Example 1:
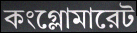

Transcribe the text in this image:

কংগ্লোমারেট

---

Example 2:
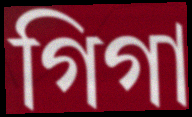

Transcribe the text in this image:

গিগা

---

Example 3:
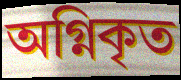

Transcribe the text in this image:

অগ্নিকৃত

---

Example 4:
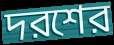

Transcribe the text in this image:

দরশের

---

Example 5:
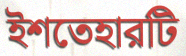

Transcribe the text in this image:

ইশতেহারটি